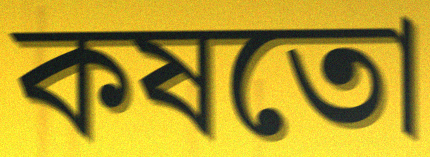
কষতো